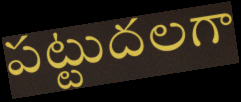
పట్టుదలగా